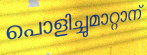
പൊളിച്ചുമാറ്റാന്